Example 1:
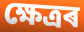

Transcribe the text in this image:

ক্ষেত্ৰৰ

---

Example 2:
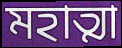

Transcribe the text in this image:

মহাত্মা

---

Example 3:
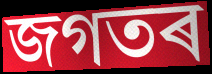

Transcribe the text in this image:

জগতৰ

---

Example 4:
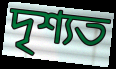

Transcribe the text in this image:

দৃশ্যত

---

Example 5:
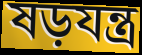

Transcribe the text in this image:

ষড়যন্ত্ৰ